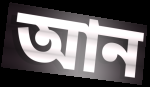
আন